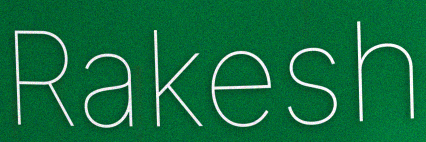
Rakesh